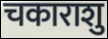
चकाराशु